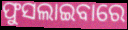
ଫୁସଲାଇବାରେ